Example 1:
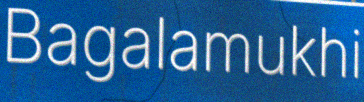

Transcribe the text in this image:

Bagalamukhi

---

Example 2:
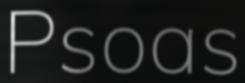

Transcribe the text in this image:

Psoas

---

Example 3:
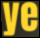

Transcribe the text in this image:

ye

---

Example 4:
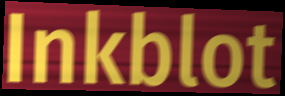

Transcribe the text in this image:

Inkblot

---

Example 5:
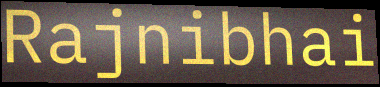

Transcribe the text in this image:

Rajnibhai